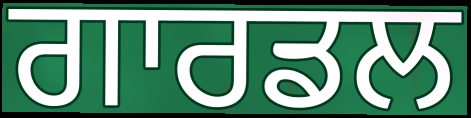
ਗਾਰਡਲ